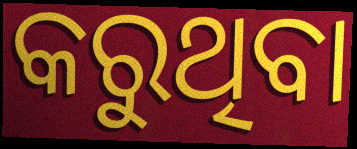
କରୁଥିବା